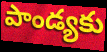
పాండ్యకు